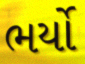
ભર્યો